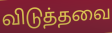
விடுத்தவை